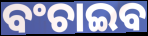
ବଂଚାଇବ